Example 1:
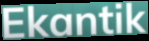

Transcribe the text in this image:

Ekantik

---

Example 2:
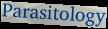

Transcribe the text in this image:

Parasitology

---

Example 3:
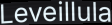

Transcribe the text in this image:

Leveillula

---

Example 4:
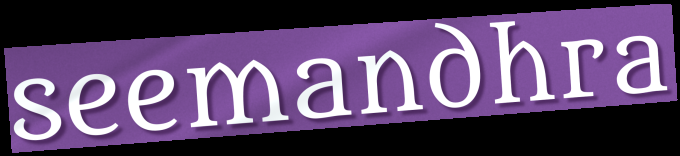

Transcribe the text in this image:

seemandhra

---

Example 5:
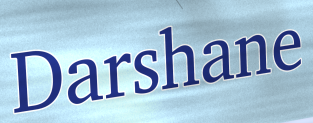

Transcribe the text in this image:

Darshane